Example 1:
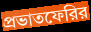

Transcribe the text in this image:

প্রভাতফেরির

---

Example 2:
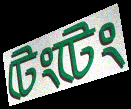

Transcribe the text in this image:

টেংটেং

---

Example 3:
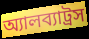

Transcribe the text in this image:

অ্যালব্যাট্রস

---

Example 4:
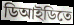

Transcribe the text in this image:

ডিআইডিতে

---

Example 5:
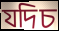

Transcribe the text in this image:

যদিচ